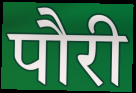
पौरी